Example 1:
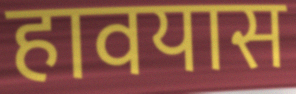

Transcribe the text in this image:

हावयास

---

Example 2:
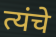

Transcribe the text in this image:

त्यंचे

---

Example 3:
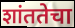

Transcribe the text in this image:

शांततेचा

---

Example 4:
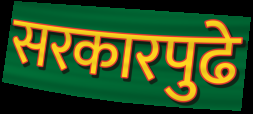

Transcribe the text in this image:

सरकारपुढे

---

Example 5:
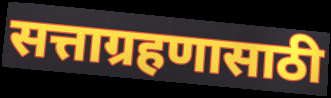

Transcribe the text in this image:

सत्ताग्रहणासाठी